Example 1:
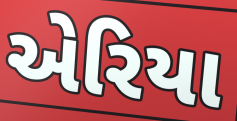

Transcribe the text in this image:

એરિયા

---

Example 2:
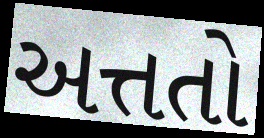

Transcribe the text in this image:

અત્તતો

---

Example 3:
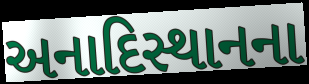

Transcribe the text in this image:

અનાદિસ્થાનના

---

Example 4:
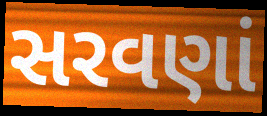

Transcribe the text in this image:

સરવણાં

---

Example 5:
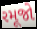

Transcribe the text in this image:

રમૂજો